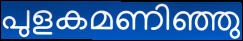
പുളകമണിഞ്ഞു